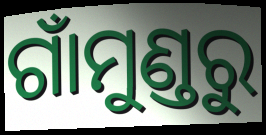
ଗାଁମୁଣ୍ଡରୁ